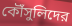
কৌঁসুলিদের